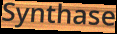
Synthase